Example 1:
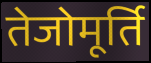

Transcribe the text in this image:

तेजोमूर्ति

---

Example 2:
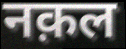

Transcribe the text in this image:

नक़ल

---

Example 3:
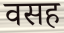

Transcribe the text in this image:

वसह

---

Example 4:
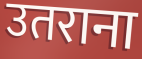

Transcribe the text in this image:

उतराना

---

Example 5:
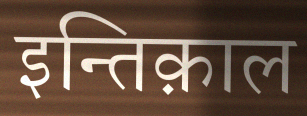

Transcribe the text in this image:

इन्तिक़ाल